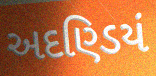
અદણ્ડિયં